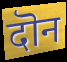
दॊन